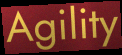
Agility